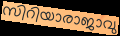
സിറിയാരാജാവു